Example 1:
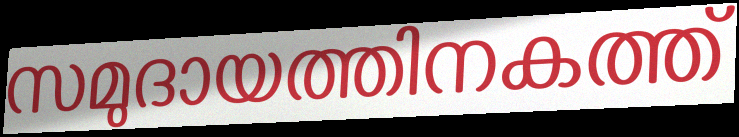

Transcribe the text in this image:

സമുദായത്തിനകത്ത്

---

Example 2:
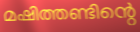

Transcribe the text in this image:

മഷിത്തണ്ടിന്റെ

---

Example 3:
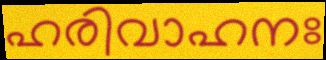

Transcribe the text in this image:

ഹരിവാഹനഃ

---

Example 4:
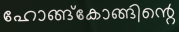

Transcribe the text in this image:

ഹോങ്ങ്കോങ്ങിന്റെ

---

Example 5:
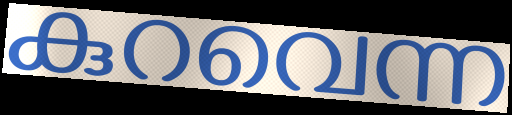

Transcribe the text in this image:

കുറവെന്ന